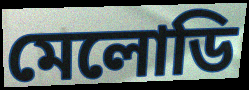
মেলোডি